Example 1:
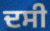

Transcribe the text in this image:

ਦਸੀ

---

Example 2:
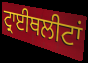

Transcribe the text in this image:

ਟ੍ਰਾਈਥਲੀਟਾਂ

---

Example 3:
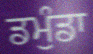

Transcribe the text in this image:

ਡਮੁੰਡਾ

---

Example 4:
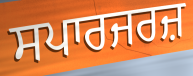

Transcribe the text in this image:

ਸਪਾਰਜਰਜ਼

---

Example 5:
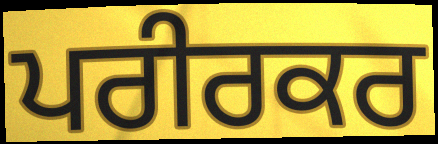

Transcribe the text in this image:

ਪਰੀਰਕਰ